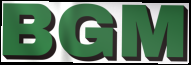
BGM